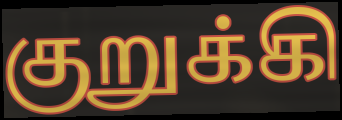
குறுக்கி